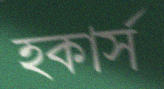
হকার্স